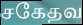
சகேதவ